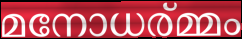
മനോധര്മ്മം